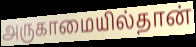
அருகாமையில்தான்